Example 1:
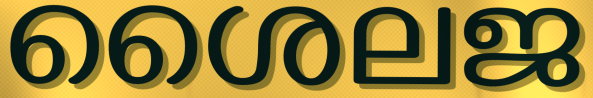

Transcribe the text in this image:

ശൈലജ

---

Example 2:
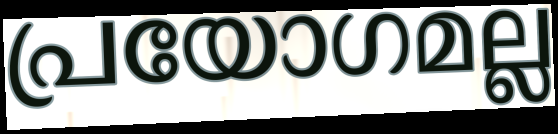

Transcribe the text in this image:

പ്രയോഗമല്ല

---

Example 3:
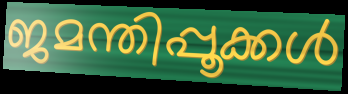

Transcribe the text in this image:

ജമന്തിപ്പൂക്കൾ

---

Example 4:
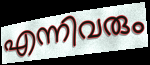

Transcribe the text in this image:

എന്നിവരും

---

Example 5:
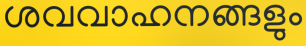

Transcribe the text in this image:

ശവവാഹനങ്ങളും